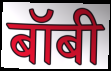
बॉबी